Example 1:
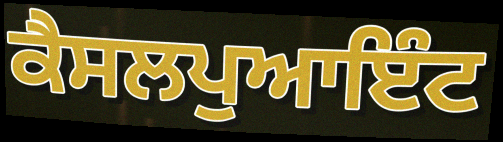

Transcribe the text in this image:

ਕੈਸਲਪੁਆਇੰਟ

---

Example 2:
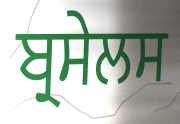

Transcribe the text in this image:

ਬ੍ਰਸੇਲਸ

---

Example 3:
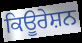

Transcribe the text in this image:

ਕਿਊਰੇਸ਼ਨ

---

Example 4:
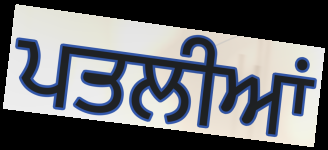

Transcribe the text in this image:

ਪਤਲੀਆਂ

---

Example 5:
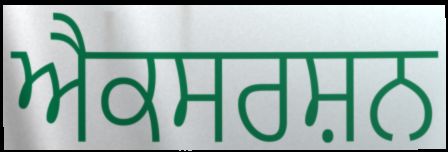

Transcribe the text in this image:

ਐਕਸਰਸ਼ਨ